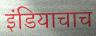
इंडियाचाच